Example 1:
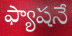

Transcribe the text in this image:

ఫ్యాషనే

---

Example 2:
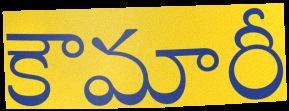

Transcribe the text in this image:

కౌమారీ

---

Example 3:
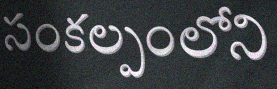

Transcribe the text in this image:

సంకల్పంలోని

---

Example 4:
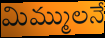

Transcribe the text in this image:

మిమ్ములనే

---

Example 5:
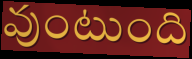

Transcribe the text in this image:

వుంటుంది